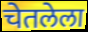
चेतलेला